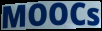
MOOCs